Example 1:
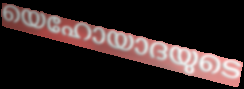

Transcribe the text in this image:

യെഹോയാദയുടെ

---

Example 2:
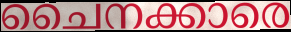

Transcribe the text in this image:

ചൈനക്കാരെ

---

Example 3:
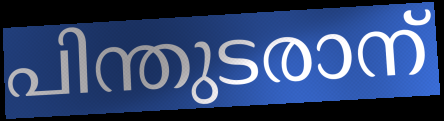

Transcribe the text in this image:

പിന്തുടരാന്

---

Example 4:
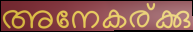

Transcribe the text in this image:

അനേകര്ക്കു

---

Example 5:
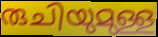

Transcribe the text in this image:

രുചിയുമുള്ള